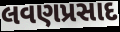
લવણપ્રસાદ